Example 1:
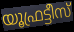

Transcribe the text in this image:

യൂഫ്രട്ടീസ്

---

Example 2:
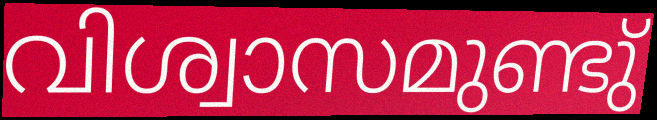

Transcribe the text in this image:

വിശ്വാസമുണ്ടു്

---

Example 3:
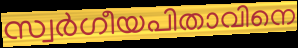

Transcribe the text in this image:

സ്വർഗീയപിതാവിനെ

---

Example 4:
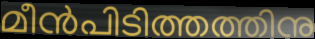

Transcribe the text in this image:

മീൻപിടിത്തത്തിനു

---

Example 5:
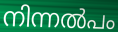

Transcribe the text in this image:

നിന്നൽപം